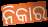
ନିକାର